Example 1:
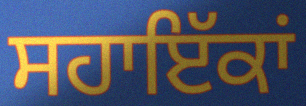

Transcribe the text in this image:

ਸਹਾਇੱਕਾਂ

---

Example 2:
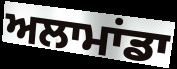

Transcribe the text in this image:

ਅਲਾਮਾਂਡਾ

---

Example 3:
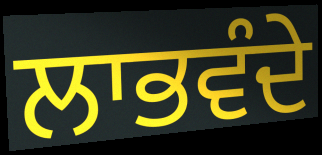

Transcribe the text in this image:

ਲਾਭਵੰਦੇ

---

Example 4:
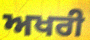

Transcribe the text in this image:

ਅਖਰੀ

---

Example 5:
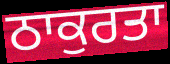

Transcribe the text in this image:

ਠਾਕੁਰਤਾ